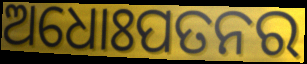
ଅଧୋଃପତନର